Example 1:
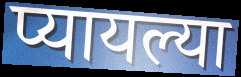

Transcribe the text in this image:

प्यायल्या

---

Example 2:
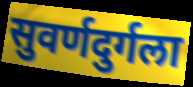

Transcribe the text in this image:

सुवर्णदुर्गला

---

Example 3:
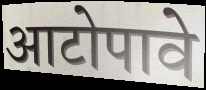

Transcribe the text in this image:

आटोपावे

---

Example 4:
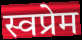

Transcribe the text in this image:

स्वप्रेम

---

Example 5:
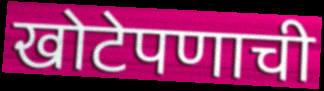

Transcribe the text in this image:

खोटेपणाची